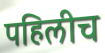
पहिलीच